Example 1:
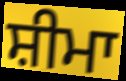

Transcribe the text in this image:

ਸ਼ੀਮਾ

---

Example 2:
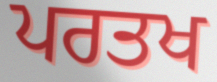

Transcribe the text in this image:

ਪਰਤਖ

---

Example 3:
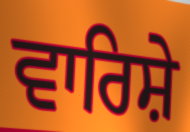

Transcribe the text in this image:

ਵਾਰਿਸ਼ੇ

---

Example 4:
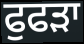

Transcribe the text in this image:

ਫੁਫੜਾ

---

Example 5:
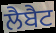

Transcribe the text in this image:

ਲੈਬੈਟ